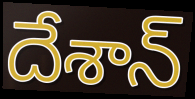
దేశాన్